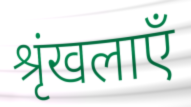
श्रृंखलाएँ